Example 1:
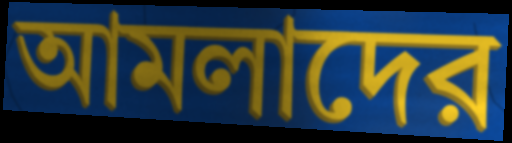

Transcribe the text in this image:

আমলাদের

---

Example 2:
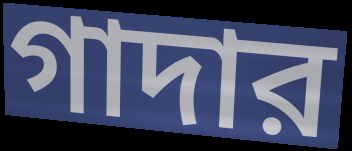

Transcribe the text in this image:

গাদার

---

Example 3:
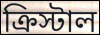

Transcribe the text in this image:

ক্রিস্টাল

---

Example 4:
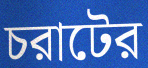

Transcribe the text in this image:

চরাটের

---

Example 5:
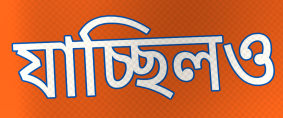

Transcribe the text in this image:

যাচ্ছিলও